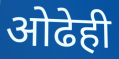
ओढेही